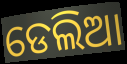
ଡେଲିଆ